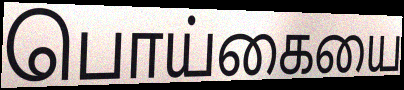
பொய்கையை